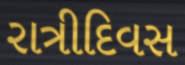
રાત્રીદિવસ